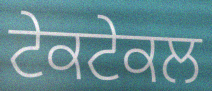
ਟੇਕਟੇਕਲ